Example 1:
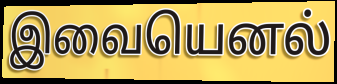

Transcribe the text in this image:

இவையெனல்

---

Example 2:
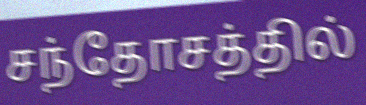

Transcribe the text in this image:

சந்தோசத்தில்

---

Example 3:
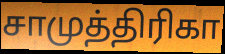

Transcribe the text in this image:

சாமுத்திரிகா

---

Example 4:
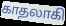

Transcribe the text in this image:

காதலாகி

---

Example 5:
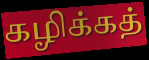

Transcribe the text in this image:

கழிக்கத்